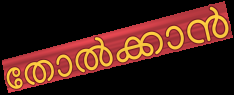
തോൽക്കാൻ